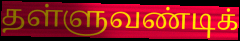
தள்ளுவண்டிக்